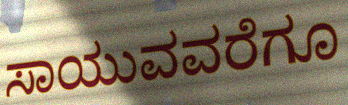
ಸಾಯುವವರೆಗೂ